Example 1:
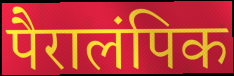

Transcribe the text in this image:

पैरालंपिक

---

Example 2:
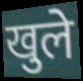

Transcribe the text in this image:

खुले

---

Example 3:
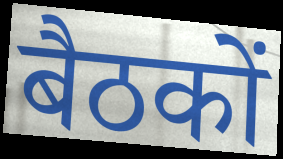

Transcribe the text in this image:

बैठकों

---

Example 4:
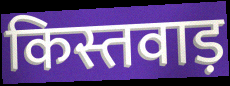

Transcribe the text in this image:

किस्तवाड़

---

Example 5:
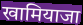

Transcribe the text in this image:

खामियाजा